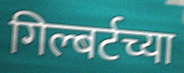
गिल्बर्टच्या